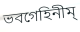
ভবগেহিনীম্